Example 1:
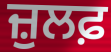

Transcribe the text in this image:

ਜ਼ੁਲਫ਼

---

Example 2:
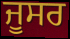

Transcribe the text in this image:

ਜੂਸਰ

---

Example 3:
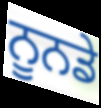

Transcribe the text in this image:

ਨੂਨਡੇ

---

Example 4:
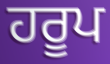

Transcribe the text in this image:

ਹਰੂਪ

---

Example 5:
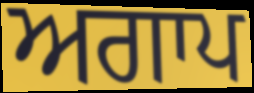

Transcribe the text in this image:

ਅਗਾਪ